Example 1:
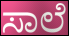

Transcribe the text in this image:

ಸಾಲೆ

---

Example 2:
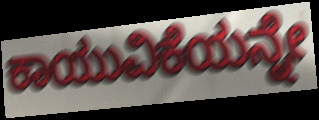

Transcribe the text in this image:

ಕಾಯುವಿಕೆಯನ್ನೇ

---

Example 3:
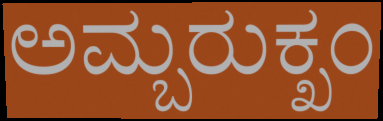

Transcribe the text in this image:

ಅಮ್ಬರುಕ್ಖಂ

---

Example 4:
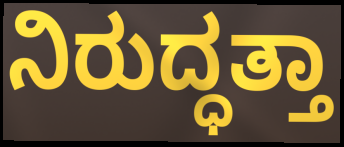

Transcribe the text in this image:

ನಿರುದ್ಧತ್ತಾ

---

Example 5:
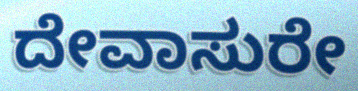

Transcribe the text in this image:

ದೇವಾಸುರೇ